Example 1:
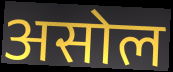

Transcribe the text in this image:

असोल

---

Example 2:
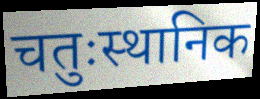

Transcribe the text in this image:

चतुःस्थानिक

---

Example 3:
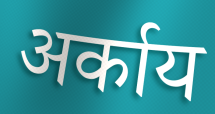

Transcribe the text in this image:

अर्काय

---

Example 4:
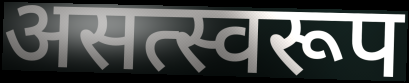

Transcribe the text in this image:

असत्स्वरूप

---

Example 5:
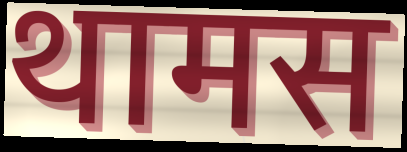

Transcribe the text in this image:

थामस